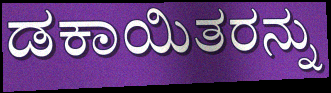
ಡಕಾಯಿತರನ್ನು